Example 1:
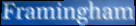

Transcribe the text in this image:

Framingham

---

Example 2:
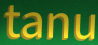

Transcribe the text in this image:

tanu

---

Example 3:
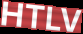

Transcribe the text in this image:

HTLV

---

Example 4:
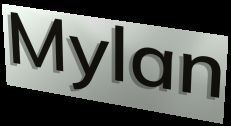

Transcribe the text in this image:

Mylan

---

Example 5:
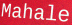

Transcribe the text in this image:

Mahale